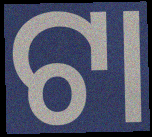
ଟା